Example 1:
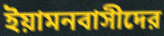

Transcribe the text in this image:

ইয়ামনবাসীদের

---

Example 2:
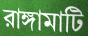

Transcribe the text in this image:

রাঙ্গামাটি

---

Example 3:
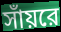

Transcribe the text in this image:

সাঁয়রে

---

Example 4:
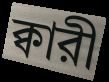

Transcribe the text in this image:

ক্বারী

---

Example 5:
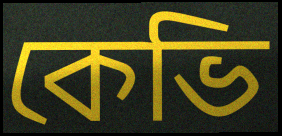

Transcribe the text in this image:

কেভি